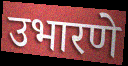
उभारणे